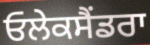
ਓਲੇਕਸੈਂਡਰਾ